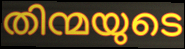
തിന്മയുടെ